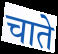
चाते